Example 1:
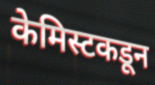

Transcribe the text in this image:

केमिस्टकडून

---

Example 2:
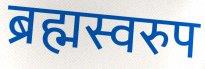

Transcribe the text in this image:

ब्रह्मस्वरुप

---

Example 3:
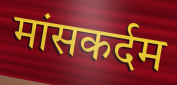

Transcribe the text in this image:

मांसकर्दम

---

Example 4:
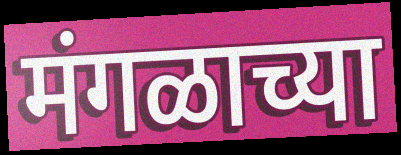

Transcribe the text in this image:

मंगळाच्या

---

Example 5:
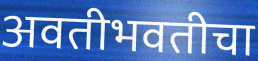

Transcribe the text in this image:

अवतीभवतीचा